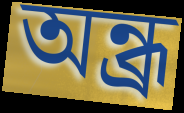
অন্ধ্ৰ